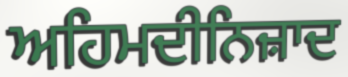
ਅਹਿਮਦੀਨਿਜ਼ਾਦ